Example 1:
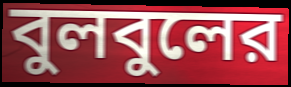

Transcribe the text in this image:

বুলবুলের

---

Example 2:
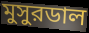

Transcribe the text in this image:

মুসুরডাল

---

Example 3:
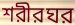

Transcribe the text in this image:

শরীরঘর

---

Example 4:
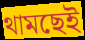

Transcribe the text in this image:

থামছেই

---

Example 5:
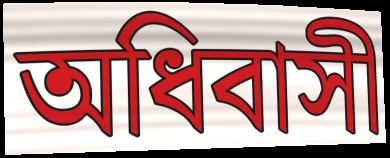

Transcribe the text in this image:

অধিবাসী